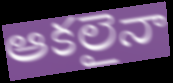
ఆకలైనా